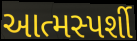
આત્મસ્પર્શી